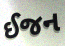
ઈજન